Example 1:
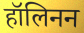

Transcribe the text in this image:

हॉलिनन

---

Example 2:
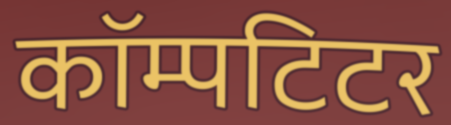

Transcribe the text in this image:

कॉम्पटिटर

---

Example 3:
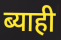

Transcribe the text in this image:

ब्याही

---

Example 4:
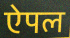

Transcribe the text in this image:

ऐपल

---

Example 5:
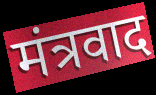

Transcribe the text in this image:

मंत्रवाद